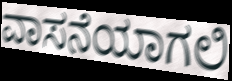
ವಾಸನೆಯಾಗಲಿ